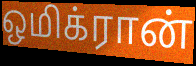
ஒமிக்ரான்